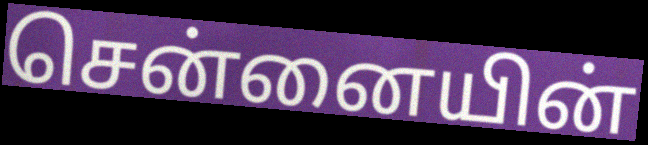
சென்னையின்